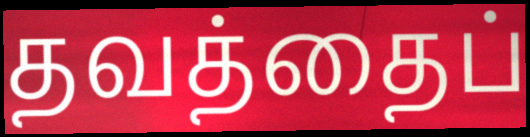
தவத்தைப்